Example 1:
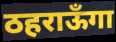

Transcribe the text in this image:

ठहराऊँगा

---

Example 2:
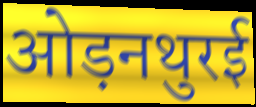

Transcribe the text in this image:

ओड़नथुरई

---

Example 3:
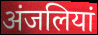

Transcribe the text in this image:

अंजलियां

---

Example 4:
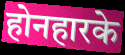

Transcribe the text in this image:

होनहारके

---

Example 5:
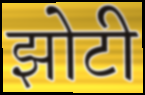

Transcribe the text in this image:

झोटी